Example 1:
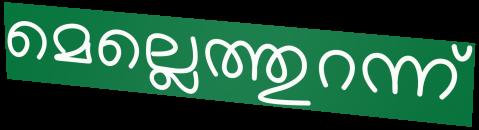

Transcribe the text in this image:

മെല്ലെത്തുറന്ന്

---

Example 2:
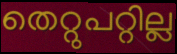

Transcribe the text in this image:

തെറ്റുപറ്റില്ല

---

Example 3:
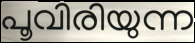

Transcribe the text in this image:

പൂവിരിയുന്ന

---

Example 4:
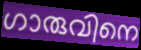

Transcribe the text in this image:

ഗാരുവിനെ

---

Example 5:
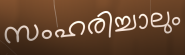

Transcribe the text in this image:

സംഹരിച്ചാലും